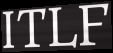
ITLF